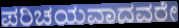
ಪರಿಚಯವಾದವರೇ